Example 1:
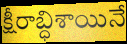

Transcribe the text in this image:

క్షీరాబ్ధిశాయినే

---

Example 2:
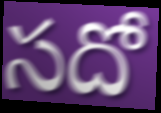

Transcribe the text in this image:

సదో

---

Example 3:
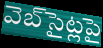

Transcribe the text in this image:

వెబ్‌సైట్లపై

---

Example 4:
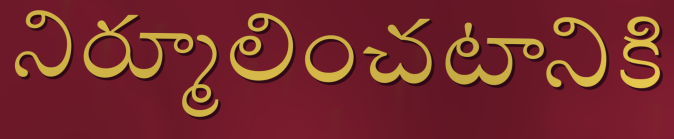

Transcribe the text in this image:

నిర్మూలించటానికి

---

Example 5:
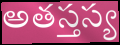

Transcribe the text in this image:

అతస్తస్య